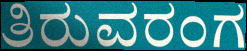
ತಿರುವರಂಗ